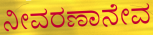
ನೀವರಣಾನೇವ